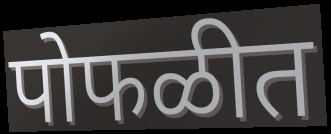
पोफळीत